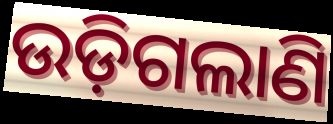
ଉଡ଼ିଗଲାଣି